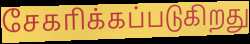
சேகரிக்கப்படுகிறது